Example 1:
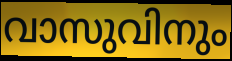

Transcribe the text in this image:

വാസുവിനും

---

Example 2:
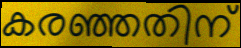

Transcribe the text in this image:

കരഞ്ഞതിന്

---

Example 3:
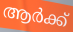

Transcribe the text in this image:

ആർക്ക്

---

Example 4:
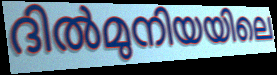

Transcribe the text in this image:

ദിൽമുനിയയിലെ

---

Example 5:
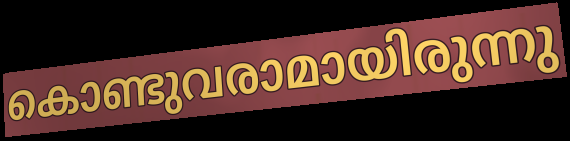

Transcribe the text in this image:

കൊണ്ടുവരാമായിരുന്നു